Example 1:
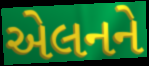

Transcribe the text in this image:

એલનને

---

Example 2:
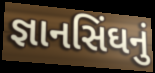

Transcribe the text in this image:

જ્ઞાનસિંઘનું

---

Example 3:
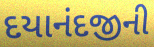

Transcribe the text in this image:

દયાનંદજીની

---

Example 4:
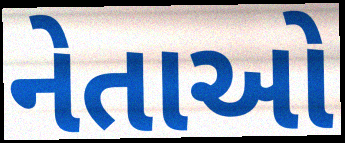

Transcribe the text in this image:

નેતાઓ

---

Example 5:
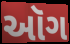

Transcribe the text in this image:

ઑગ